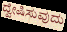
ದ್ವೇಷಿಸುವುದು